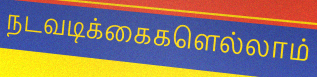
நடவடிக்கைகளெல்லாம்